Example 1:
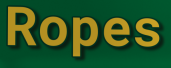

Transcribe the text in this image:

Ropes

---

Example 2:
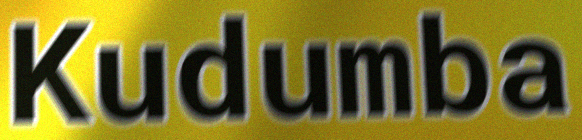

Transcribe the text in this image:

Kudumba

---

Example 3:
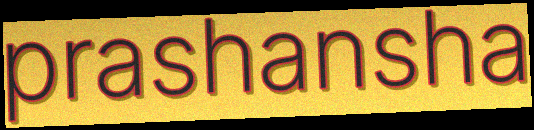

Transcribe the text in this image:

prashansha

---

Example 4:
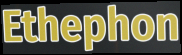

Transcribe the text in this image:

Ethephon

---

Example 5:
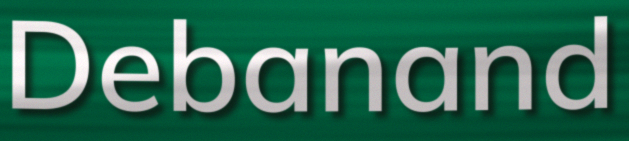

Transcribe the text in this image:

Debanand